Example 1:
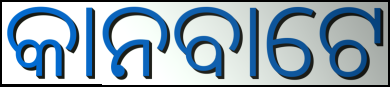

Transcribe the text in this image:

କାନବାଟେ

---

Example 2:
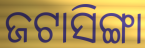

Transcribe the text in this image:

ଜଟାସିଙ୍ଗା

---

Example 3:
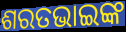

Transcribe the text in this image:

ଶରତଭାଇଙ୍କ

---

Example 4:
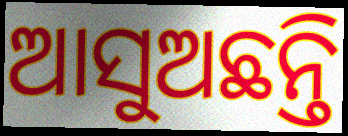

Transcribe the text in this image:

ଆସୁଅଛନ୍ତି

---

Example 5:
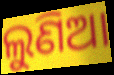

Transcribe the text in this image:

ଲୁଣିଆ